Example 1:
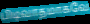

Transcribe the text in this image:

பிடிவாதமாகவே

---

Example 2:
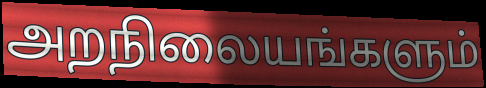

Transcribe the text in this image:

அறநிலையங்களும்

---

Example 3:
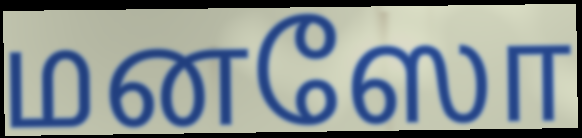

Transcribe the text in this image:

மனஸோ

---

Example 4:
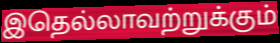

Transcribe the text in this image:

இதெல்லாவற்றுக்கும்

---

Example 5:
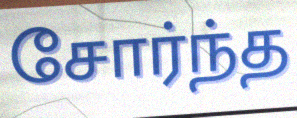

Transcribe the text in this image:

சோர்ந்த